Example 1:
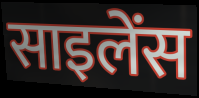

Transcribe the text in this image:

साइलेंस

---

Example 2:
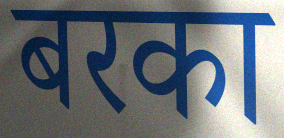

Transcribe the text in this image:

बरका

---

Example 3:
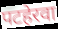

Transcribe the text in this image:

पटहेरवा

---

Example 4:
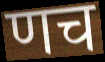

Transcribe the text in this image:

णच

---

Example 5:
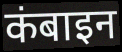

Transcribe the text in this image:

कंबाइन